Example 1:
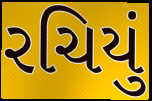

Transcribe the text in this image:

રચિયું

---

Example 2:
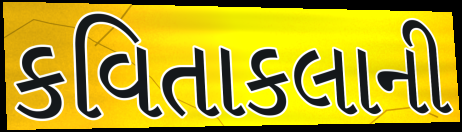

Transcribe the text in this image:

કવિતાકલાની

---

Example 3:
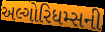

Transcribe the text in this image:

અલ્ગોરિધમ્સની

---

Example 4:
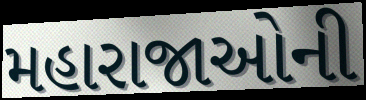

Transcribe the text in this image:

મહારાજાઓની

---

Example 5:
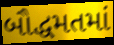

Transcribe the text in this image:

બૌદ્ધમતમાં